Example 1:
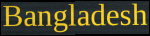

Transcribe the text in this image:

Bangladesh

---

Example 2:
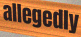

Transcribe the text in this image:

allegedly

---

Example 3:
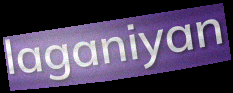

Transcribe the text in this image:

laganiyan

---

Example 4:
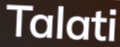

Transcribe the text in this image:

Talati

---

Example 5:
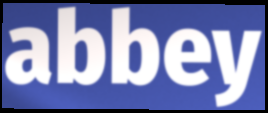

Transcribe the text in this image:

abbey